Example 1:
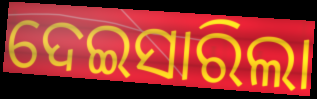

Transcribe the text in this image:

ଦେଇସାରିଲା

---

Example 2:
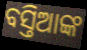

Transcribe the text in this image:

ବସ୍ତିଆଙ୍କ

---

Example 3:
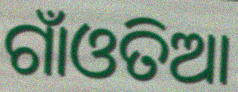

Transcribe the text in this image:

ଗାଁଓତିଆ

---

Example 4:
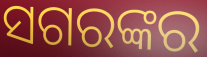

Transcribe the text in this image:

ସଗରଙ୍କର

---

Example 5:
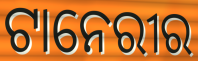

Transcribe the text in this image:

ଟାନେରୀର